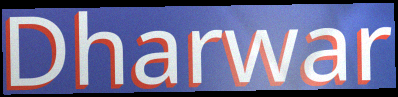
Dharwar